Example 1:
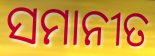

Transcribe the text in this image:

ସମାନୀତ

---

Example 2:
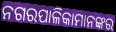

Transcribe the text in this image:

ନଗରପାଳିକାମାନଙ୍କର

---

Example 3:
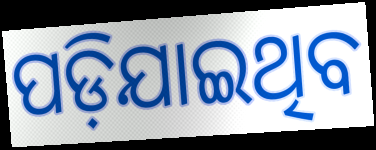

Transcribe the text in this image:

ପଡ଼ିଯାଇଥିବ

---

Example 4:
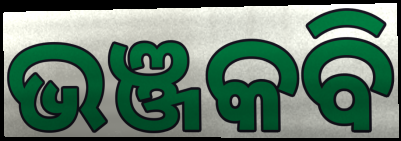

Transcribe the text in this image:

ଭଞ୍ଜକବି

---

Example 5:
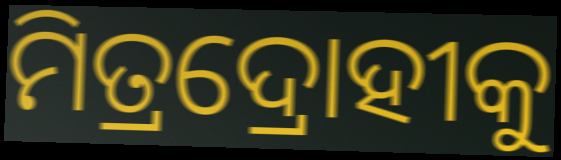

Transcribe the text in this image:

ମିତ୍ରଦ୍ରୋହୀକୁ